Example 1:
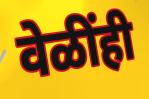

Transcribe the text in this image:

वेळींही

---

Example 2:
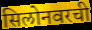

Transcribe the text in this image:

सिलोनवरची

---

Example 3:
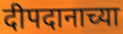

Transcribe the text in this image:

दीपदानाच्या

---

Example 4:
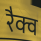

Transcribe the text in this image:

रैक्व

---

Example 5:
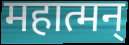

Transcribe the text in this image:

महात्मन्